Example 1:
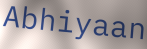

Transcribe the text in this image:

Abhiyaan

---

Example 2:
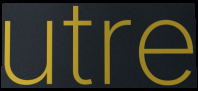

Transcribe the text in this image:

utre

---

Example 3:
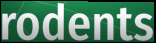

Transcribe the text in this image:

rodents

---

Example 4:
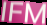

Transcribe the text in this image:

IFM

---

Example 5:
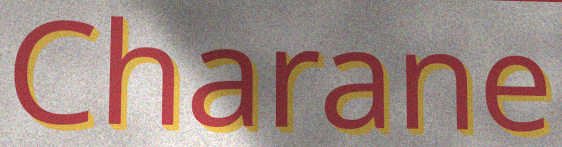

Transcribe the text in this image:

Charane